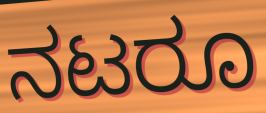
ನಟರೂ